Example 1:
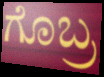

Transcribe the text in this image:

ಗೊಬ್ರ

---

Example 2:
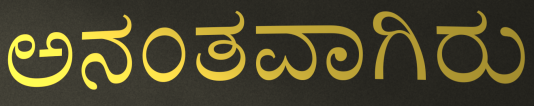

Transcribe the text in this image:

ಅನಂತವಾಗಿರು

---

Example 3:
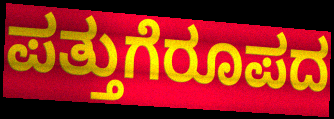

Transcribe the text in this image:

ಪತ್ತುಗೆರೂಪದ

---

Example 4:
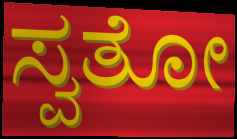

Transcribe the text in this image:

ಸ್ವತೋ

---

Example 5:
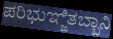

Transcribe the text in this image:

ಪರಿಭುಞ್ಜಿತಬ್ಬಾನಿ